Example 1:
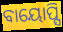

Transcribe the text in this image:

ବାୟୋପ୍ସି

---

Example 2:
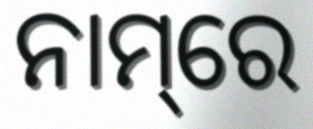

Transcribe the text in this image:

ନାମ୍‌ରେ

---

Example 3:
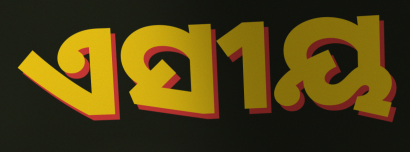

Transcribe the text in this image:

ଏସୀୟ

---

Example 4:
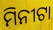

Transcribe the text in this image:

ମିନୀଟା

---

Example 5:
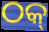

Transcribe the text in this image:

ଠକ୍